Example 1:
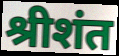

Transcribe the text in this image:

श्रीशंत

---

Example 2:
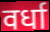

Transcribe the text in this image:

वर्धा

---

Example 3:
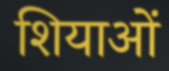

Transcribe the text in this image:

शियाओं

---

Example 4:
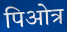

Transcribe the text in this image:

पिओत्र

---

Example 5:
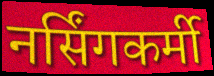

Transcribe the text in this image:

नर्सिंगकर्मी